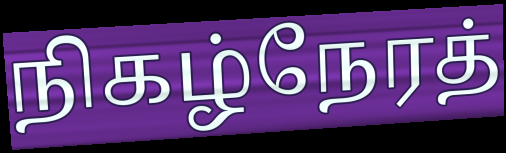
நிகழ்நேரத்